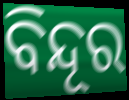
ବିନ୍ଦୂର